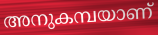
അനുകമ്പയാണ്